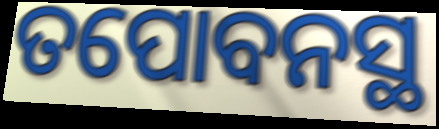
ତପୋବନସ୍ଥ